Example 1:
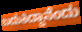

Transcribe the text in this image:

ಬದುಕಿದ್ದಾನೆಂದು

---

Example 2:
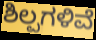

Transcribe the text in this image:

ಶಿಲ್ಪಗಳಿವೆ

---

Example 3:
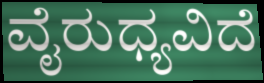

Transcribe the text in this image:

ವೈರುಧ್ಯವಿದೆ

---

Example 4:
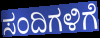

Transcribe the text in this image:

ಸಂದಿಗಳಿಗೆ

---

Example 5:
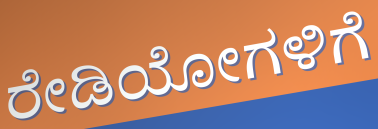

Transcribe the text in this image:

ರೇಡಿಯೋಗಳಿಗೆ